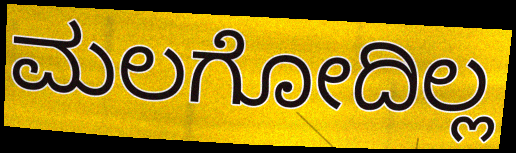
ಮಲಗೋದಿಲ್ಲ